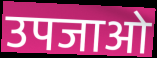
उपजाओ